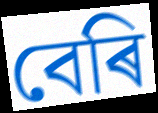
বেৰি